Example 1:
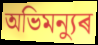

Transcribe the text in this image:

অভিমন্যুৰ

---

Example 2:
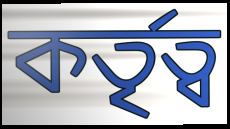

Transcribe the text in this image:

কৰ্তৃত্ব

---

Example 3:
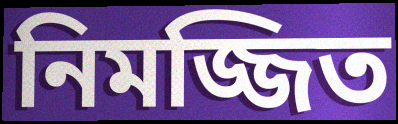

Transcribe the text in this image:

নিমজ্জিত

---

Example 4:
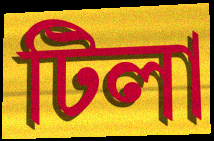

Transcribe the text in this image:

টিলা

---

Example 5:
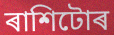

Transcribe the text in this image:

ৰাশিটোৰ